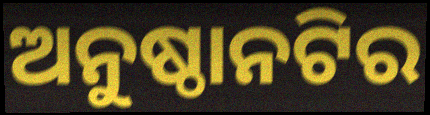
ଅନୁଷ୍ଠାନଟିର